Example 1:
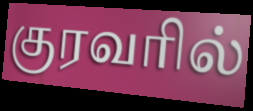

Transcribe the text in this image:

குரவரில்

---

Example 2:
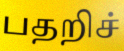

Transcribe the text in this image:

பதறிச்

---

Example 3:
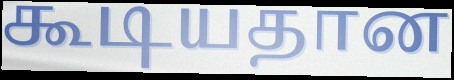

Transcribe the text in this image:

கூடியதான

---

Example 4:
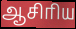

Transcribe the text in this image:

ஆசிரிய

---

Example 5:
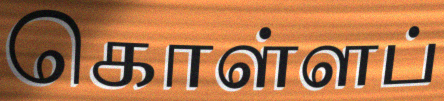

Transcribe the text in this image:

கொள்ளப்